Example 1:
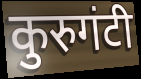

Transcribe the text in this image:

कुरुगंटी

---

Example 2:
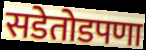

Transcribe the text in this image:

सडेतोडपणा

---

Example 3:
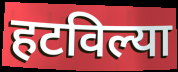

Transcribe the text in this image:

हटविल्या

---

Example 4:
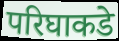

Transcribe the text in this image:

परिघाकडे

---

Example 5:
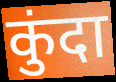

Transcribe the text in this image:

कुंदा